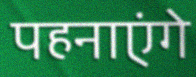
पहनाएंगे